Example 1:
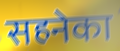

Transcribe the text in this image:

सहनेका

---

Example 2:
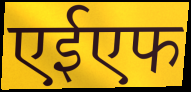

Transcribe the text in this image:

एईएफ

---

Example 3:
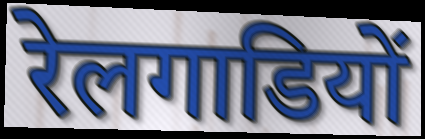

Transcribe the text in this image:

रेलगाडियों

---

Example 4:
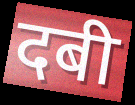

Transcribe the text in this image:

दबी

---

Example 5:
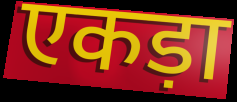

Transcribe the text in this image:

एकड़ा